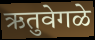
ऋतुवेगळे